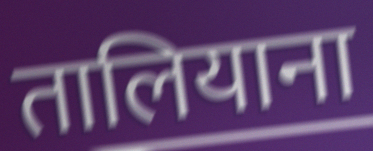
तालियाना